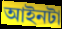
আইনটা